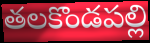
తలకొండపల్లి